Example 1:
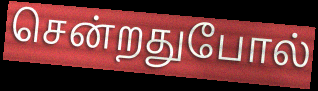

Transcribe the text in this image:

சென்றதுபோல்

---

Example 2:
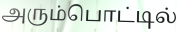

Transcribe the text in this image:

அரும்பொட்டில்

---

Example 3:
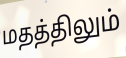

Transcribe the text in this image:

மதத்திலும்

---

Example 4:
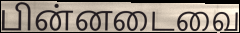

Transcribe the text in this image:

பின்னடைவை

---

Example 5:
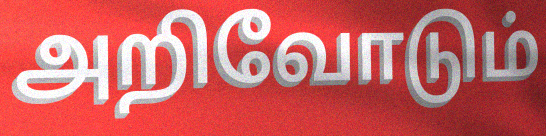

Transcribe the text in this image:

அறிவோடும்